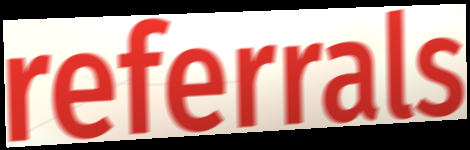
referrals